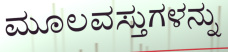
ಮೂಲವಸ್ತುಗಳನ್ನು